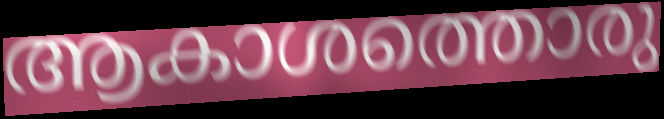
ആകാശത്തൊരു